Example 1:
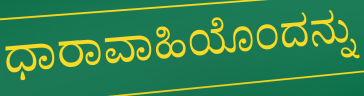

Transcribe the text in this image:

ಧಾರಾವಾಹಿಯೊಂದನ್ನು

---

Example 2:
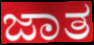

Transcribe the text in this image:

ಜಾತ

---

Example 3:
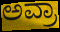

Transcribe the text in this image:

ಅವ್ರಾ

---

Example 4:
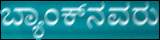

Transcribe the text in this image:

ಬ್ಯಾಂಕ್‌ನವರು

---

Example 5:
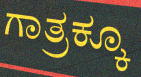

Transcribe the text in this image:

ಗಾತ್ರಕ್ಕೂ